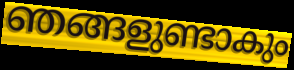
ഞങ്ങളുണ്ടാകും